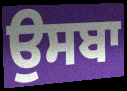
ਉਸਬਾ